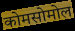
कोमसोमोल